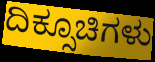
ದಿಕ್ಸೂಚಿಗಳು